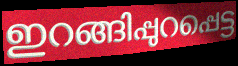
ഇറങ്ങിപ്പുറപ്പെട്ട